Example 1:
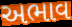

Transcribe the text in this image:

અભાવ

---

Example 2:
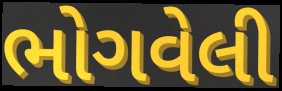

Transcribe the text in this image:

ભોગવેલી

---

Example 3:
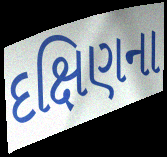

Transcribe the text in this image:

દક્ષિણના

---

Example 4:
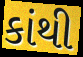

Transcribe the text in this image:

કાંથી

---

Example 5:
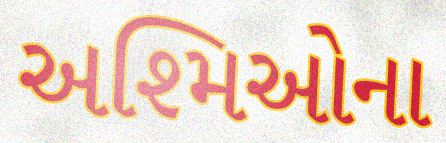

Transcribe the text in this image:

અશ્મિઓના